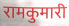
रामकुमारी